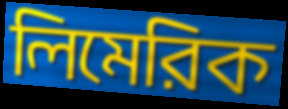
লিমেরিক